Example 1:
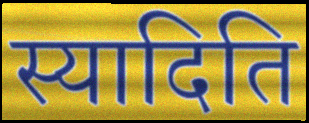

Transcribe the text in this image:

स्यादिति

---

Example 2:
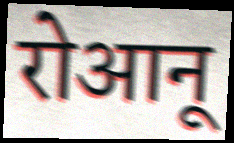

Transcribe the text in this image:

रोआनू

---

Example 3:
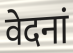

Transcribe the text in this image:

वेदनां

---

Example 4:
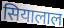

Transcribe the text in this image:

सियालाल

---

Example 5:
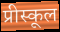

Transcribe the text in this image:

प्रीस्कूल